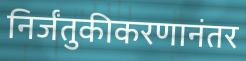
निर्जंतुकीकरणानंतर